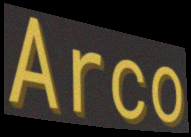
Arco